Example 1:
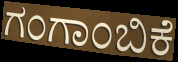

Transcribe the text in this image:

ಗಂಗಾಂಬಿಕೆ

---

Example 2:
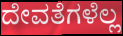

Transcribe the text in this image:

ದೇವತೆಗಳೆಲ್ಲ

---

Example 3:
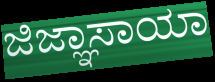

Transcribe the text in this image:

ಜಿಜ್ಞಾಸಾಯಾ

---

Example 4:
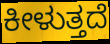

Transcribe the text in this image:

ಕೀಳುತ್ತದೆ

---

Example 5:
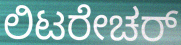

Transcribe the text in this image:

ಲಿಟರೇಚರ್